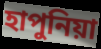
হাপুনিয়া